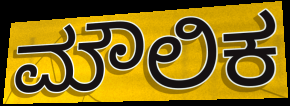
ಮೌಲಿಕ